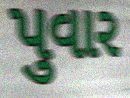
પુવાર